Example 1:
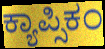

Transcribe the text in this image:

ಕ್ಯಾಪ್ಸಿಕಂ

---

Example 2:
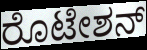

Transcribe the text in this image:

ರೊಟೇಶನ್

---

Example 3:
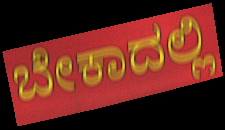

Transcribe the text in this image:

ಬೇಕಾದಲ್ಲಿ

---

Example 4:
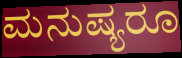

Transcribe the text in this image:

ಮನುಷ್ಯರೂ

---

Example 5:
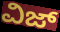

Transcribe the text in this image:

ವಿಜ್